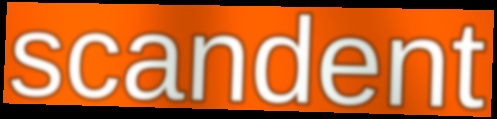
scandent